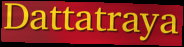
Dattatraya